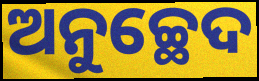
ଅନୁଚ୍ଛେଦ